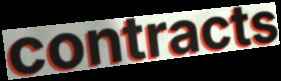
contracts